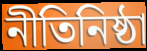
নীতিনিষ্ঠা